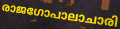
രാജഗോപാലാചാരി